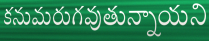
కనుమరుగవుతున్నాయని